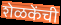
शेळकेंची